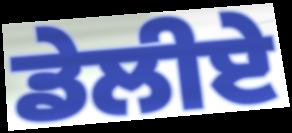
ਡੇਲੀਏ